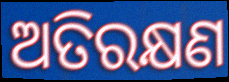
ଅତିରକ୍ଷଣ